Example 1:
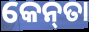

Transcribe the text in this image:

କେନ୍‌ତା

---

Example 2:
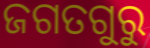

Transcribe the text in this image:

ଜଗତଗୁରୁ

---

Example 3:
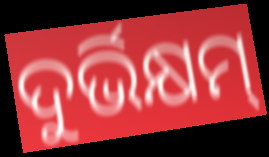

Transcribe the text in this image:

ଦୁର୍ଭିକ୍ଷମ୍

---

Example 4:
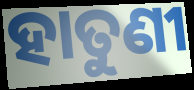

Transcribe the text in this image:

ହାତୁଣୀ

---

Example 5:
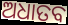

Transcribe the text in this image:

ଅଧାତବ